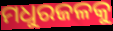
ମଧୁରଜଳକୁ